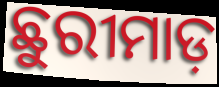
ଛୁରୀମାଡ଼